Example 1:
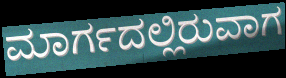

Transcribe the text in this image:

ಮಾರ್ಗದಲ್ಲಿರುವಾಗ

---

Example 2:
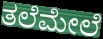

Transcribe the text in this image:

ತಲೆಮೇಲೆ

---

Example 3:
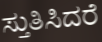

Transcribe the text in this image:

ಸ್ತುತಿಸಿದರೆ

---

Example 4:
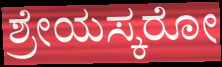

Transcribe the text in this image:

ಶ್ರೇಯಸ್ಕರೋ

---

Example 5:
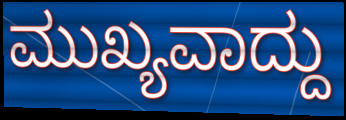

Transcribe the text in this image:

ಮುಖ್ಯವಾದ್ದು